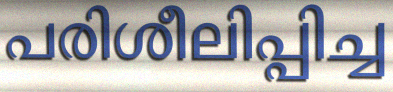
പരിശീലിപ്പിച്ച